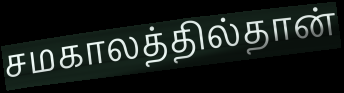
சமகாலத்தில்தான்